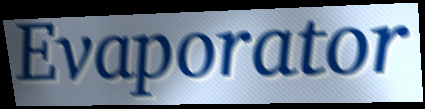
Evaporator